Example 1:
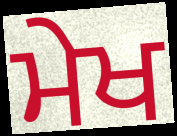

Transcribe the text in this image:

ਮੇਖ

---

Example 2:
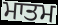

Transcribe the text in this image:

ਮਾਤਮ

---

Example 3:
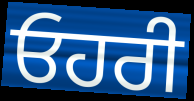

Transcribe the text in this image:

ਓਹਰੀ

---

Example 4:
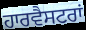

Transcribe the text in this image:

ਹਾਰਵੈਸਟਰਾਂ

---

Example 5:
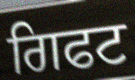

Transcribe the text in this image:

ਗਿਫਟ